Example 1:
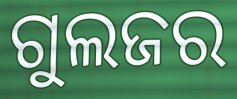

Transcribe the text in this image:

ଗୁଲଜର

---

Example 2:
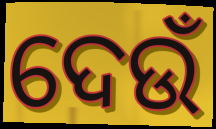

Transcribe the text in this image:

ଦେଉଁ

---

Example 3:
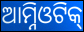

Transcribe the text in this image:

ଆମ୍ନିଓଟିକ୍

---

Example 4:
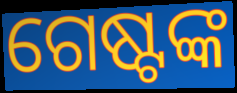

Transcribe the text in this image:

ଗେଷ୍ଟଙ୍କ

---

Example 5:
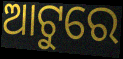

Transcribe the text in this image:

ଆଟୁରେ